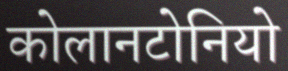
कोलानटोनियो